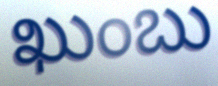
ఖుంబు